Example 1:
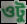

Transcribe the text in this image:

ওটু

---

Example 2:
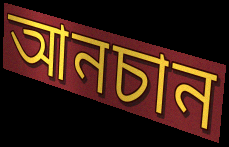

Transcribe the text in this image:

আনচান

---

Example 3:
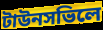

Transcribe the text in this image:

টাউনসভিলে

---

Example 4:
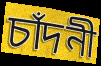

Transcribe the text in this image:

চাঁদনী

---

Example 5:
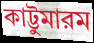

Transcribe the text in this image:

কাট্টুমারম